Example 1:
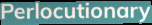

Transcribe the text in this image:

Perlocutionary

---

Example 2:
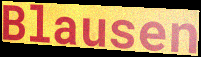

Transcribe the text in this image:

Blausen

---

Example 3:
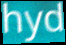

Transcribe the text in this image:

hyd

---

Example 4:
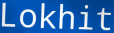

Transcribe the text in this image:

Lokhit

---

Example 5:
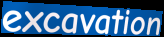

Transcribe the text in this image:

excavation